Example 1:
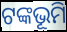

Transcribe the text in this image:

ଟଙ୍କଭୂମି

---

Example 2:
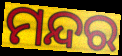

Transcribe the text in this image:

ମନ୍ଦର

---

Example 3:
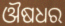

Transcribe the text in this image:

ଔଷଧର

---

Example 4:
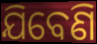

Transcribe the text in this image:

ଯିବେଣି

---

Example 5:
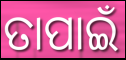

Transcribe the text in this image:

ତାପାଇଁ